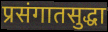
प्रसंगातसुद्धा